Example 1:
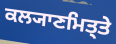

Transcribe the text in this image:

ਕਲ੍ਯਾਣਮਿਤ੍ਤੇ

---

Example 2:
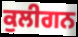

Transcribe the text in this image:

ਕੁਲੀਗਨ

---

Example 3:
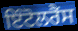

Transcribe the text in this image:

ਇੰਟੋਲਰੈਂਸ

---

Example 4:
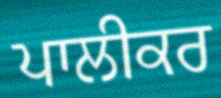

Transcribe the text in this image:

ਪਾਲੀਕਰ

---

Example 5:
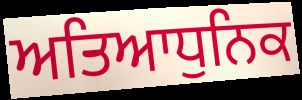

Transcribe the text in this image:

ਅਤਿਆਧੁਨਿਕ